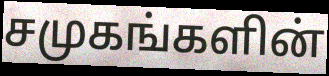
சமுகங்களின்